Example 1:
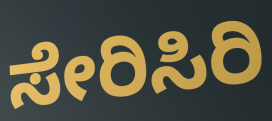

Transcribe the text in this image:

ಸೇರಿಸಿರಿ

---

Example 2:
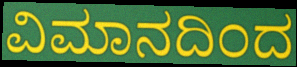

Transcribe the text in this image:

ವಿಮಾನದಿಂದ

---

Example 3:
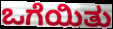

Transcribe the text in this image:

ಒಗೆಯಿತು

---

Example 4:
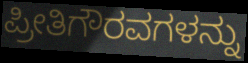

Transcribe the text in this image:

ಪ್ರೀತಿಗೌರವಗಳನ್ನು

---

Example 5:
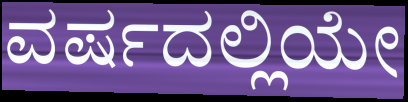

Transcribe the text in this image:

ವರ್ಷದಲ್ಲಿಯೇ